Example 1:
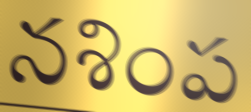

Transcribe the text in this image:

నశింప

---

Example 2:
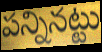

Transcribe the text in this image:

పన్నినట్టు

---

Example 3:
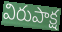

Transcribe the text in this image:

విరుపాక్ష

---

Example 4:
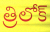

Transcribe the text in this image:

త్రిలోక్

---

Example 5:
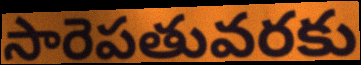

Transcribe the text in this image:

సారెపతువరకు